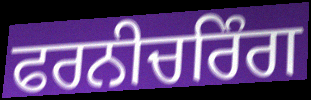
ਫਰਨੀਚਰਿੰਗ